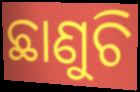
ଛାଣୁଚି